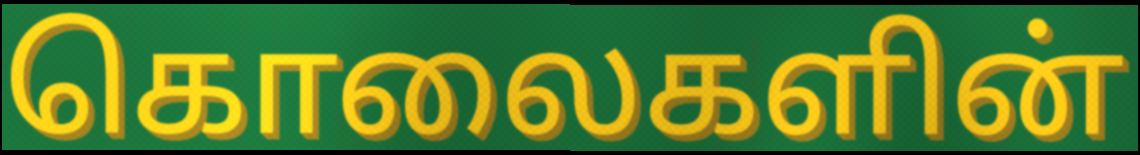
கொலைகளின்